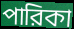
পারিকা